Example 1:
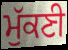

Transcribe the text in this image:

ਮੁੱਕਣੀ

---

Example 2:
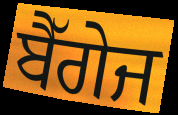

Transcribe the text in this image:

ਬੈੱਗੇਜ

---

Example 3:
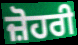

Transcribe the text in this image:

ਜ਼ੋਹਰੀ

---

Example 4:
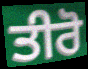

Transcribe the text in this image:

ਤੀਰੋ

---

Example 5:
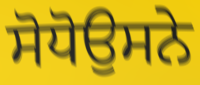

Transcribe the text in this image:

ਸੋਧੋਉਸਨੇ